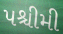
પશ્ચીમી